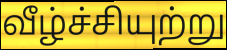
வீழ்ச்சியுற்று